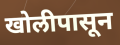
खोलीपासून